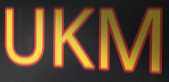
UKM